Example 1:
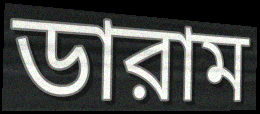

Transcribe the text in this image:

ডারাম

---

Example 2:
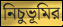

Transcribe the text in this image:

নিচুভূমির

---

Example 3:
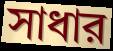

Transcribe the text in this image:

সাধার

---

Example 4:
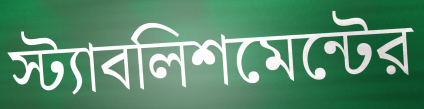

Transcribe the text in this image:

স্ট্যাবলিশমেন্টের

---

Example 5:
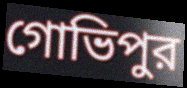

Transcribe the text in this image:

গোভিপুর